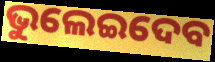
ଭୁଲେଇଦେବ